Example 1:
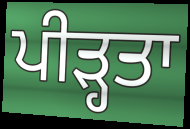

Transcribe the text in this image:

ਪੀੜ੍ਹਤਾ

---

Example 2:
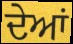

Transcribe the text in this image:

ਦੇਆਂ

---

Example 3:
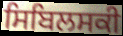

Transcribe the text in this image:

ਸਿਬਿਲਸਕੀ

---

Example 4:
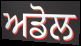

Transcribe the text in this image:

ਅਡੋਲ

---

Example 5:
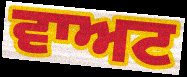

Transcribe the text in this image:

ਵਾਅਟ